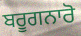
ਬਰੂਗਨਾਰੋ